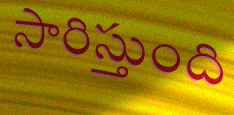
సారిస్తుంది